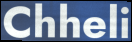
Chheli